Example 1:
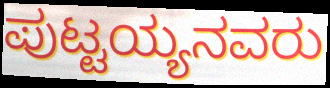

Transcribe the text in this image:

ಪುಟ್ಟಯ್ಯನವರು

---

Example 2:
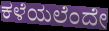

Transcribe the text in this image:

ಕಳೆಯಲೆಂದೇ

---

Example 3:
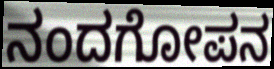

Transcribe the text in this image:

ನಂದಗೋಪನ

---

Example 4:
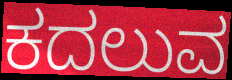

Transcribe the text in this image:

ಕದಲುವ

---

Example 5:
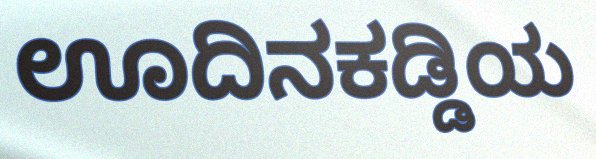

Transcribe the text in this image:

ಊದಿನಕಡ್ಡಿಯ